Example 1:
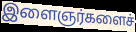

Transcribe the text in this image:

இளைஞர்களைச்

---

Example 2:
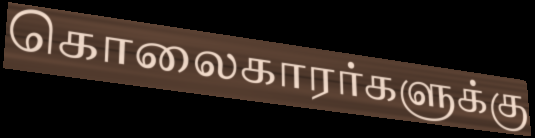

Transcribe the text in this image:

கொலைகாரர்களுக்கு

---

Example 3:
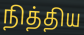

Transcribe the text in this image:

நித்திய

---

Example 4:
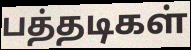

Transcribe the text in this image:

பத்தடிகள்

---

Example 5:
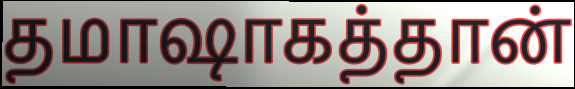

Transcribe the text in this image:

தமாஷாகத்தான்